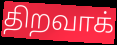
திறவாக்